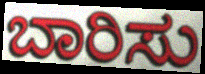
ಬಾರಿಸು